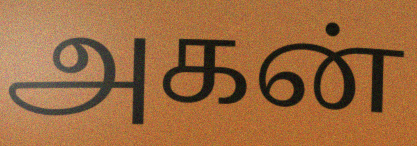
அகன்